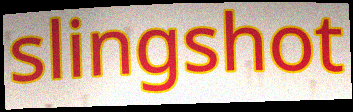
slingshot